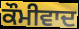
ਕੌਮੀਵਾਦ